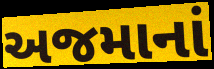
અજમાનાં